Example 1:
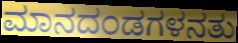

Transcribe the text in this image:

ಮಾನದಂಡಗಳನತು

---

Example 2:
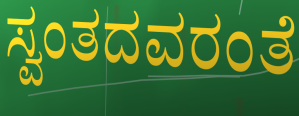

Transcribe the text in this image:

ಸ್ವಂತದವರಂತೆ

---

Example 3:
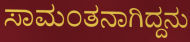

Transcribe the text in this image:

ಸಾಮಂತನಾಗಿದ್ದನು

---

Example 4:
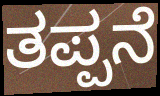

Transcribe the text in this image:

ತಪ್ಪನೆ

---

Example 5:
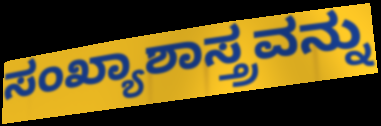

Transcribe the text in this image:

ಸಂಖ್ಯಾಶಾಸ್ತ್ರವನ್ನು